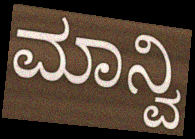
ಮಾನ್ವಿ